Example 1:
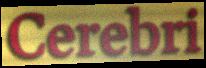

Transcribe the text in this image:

Cerebri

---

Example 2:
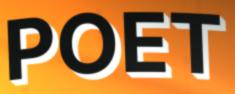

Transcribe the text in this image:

POET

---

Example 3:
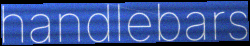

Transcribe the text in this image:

handlebars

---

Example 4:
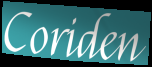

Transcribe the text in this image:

Coriden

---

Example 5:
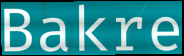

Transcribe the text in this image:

Bakre